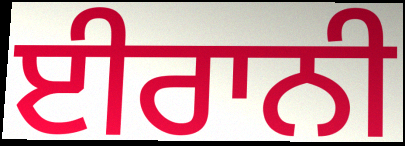
ਈਰਾਨੀ